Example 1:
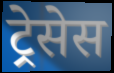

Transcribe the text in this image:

ट्रेसेस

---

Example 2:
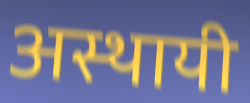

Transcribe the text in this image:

अस्थायी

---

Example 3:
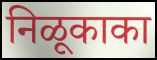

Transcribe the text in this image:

निळूकाका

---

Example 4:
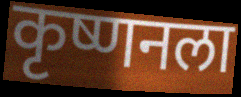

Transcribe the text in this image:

कृष्णनला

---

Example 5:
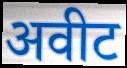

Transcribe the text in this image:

अवीट